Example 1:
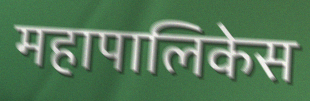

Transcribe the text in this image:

महापालिकेस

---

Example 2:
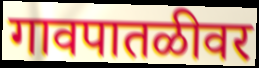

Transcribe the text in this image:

गावपातळीवर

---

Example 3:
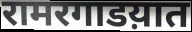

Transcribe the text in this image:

रामरगाडय़ात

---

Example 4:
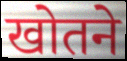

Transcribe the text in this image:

खोतने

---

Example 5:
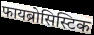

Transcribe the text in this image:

फायब्रोसिस्टिक